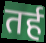
तर्ह